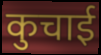
कुचाई